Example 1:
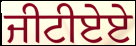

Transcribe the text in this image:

ਜੀਟੀਏਏ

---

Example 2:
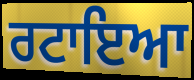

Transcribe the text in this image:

ਰਟਾਇਆ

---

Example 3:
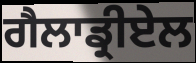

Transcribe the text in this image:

ਗੈਲਾਡ੍ਰੀਏਲ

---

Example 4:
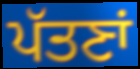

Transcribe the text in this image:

ਪੱਤਣਾਂ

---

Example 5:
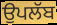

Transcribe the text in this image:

ਉਪਲੱਬ